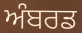
ਅੰਬਰਡ